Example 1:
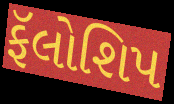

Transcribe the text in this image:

ફૅલોશિપ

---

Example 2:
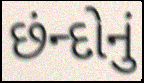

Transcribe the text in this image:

છંન્દોનું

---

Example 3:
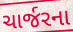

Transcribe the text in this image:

ચાર્જરના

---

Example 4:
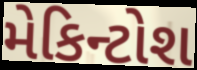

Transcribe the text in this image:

મેકિન્ટોશ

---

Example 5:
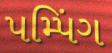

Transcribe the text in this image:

પમ્પિંગ